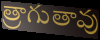
త్రాగుతావు